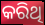
କରିଥି